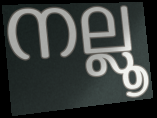
നല്ലൂ